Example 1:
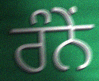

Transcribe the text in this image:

ਰੰਨੇਂ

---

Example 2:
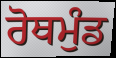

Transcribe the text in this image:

ਰੋਥਮੁੰਡ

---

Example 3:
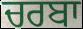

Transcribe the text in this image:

ਚਰਬਾ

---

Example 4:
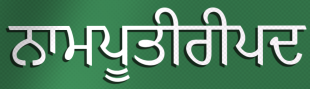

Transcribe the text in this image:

ਨਾਮਪੂਤੀਰੀਪਦ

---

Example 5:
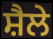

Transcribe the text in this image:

ਸ਼ੈਲੇ